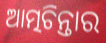
ଆତ୍ମଚିନ୍ତାର